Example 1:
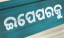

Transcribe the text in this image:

ଇପେପରକୁ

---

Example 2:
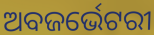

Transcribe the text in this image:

ଅବଜର୍ଭେଟରୀ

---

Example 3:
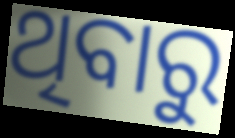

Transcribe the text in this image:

ଥିବାରୁ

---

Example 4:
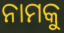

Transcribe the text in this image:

ନାମକୁ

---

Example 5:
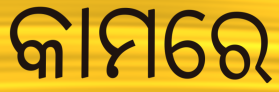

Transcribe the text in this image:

କାମରେ